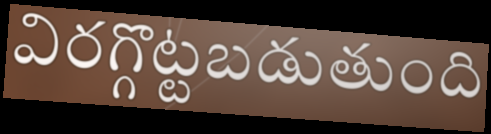
విరగ్గొట్టబడుతుంది